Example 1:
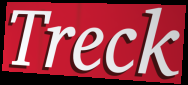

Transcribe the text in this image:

Treck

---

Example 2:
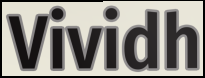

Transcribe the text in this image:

Vividh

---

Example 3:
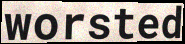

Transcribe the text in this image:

worsted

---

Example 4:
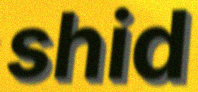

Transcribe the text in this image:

shid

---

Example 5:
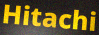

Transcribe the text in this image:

Hitachi